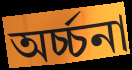
অর্চ্চনা